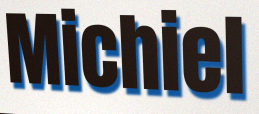
Michiel